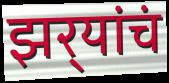
झर्‍यांचं